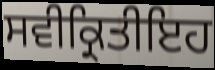
ਸਵੀਕ੍ਰਿਤੀਇਹ